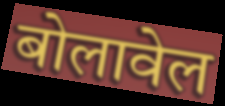
बोलावेल